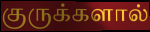
குருக்களால்